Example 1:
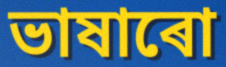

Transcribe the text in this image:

ভাষাৰো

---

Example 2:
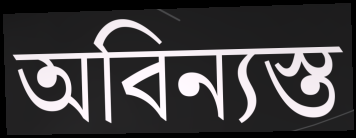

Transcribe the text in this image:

অবিন্যস্ত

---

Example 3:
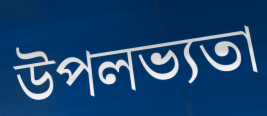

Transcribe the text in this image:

উপলভ্যতা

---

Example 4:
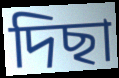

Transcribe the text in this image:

দিছা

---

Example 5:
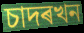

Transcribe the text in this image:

চাদৰখন